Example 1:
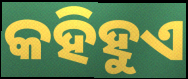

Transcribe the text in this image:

କହିହୁଏ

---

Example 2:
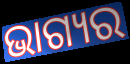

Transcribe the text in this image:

ଭାଗ୍ୟର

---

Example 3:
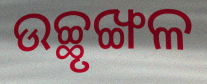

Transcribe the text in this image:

ଉଚ୍ଛୃଙ୍ଖଳ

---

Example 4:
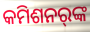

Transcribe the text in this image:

କମିଶନର୍‌ଙ୍କ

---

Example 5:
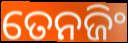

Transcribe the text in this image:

ତେନଜିଂ